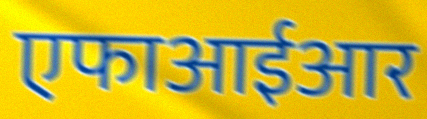
एफाआईआर